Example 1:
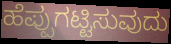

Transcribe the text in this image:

ಹೆಪ್ಪುಗಟ್ಟಿಸುವುದು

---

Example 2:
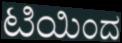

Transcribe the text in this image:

ಟಿಯಿಂದ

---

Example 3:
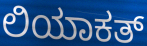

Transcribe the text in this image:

ಲಿಯಾಕತ್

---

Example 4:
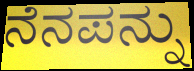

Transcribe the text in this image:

ನೆನಪನ್ನು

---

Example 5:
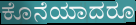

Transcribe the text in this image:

ಕೊನೆಯಾದರೂ